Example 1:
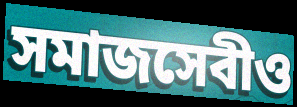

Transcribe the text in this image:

সমাজসেবীও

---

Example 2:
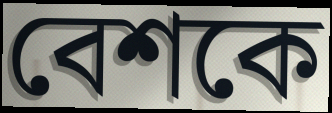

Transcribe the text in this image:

বেশকে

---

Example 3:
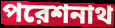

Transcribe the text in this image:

পরেশনাথ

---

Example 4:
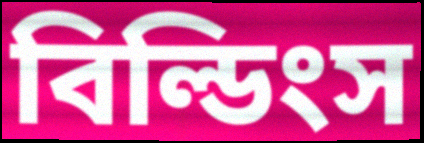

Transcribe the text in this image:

বিল্ডিংস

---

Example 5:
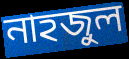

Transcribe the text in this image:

নাহজুল